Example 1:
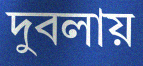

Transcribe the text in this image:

দুবলায়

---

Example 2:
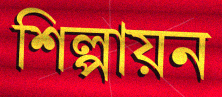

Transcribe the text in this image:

শিল্পায়ন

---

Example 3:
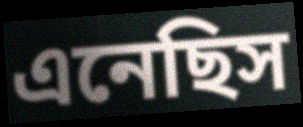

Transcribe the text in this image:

এনেছিস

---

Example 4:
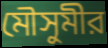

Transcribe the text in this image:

মৌসুমীর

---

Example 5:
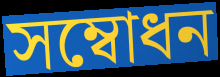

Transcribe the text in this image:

সম্বোধন